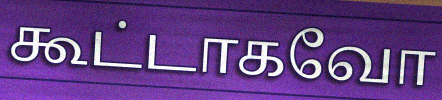
கூட்டாகவோ